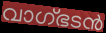
വാഗ്ഭടൻ